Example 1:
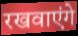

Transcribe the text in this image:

रखवाएंगे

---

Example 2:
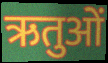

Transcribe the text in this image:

ऋतुओं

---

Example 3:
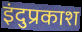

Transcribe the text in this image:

इंदुप्रकाश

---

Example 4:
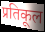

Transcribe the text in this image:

प्रतिकूल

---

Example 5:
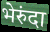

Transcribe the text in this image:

भेरुंदा